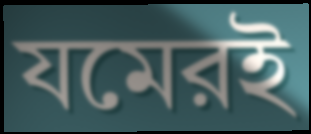
যমেরই